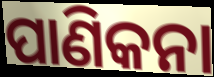
ପାଣିକନା